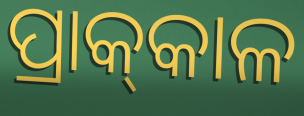
ପ୍ରାକ୍‌କାଳ